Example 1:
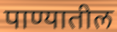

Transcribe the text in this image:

पाण्यातील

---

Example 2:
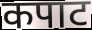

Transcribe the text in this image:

कपाट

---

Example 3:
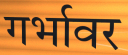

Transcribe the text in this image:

गर्भावर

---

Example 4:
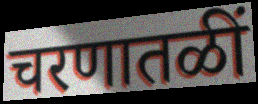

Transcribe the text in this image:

चरणातळीं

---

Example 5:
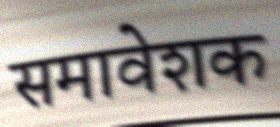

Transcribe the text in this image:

समावेशक